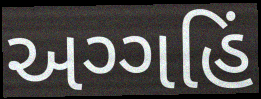
અગ્ગહિં